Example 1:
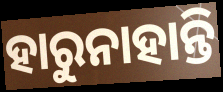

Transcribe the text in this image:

ହାରୁନାହାନ୍ତି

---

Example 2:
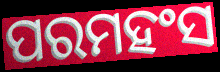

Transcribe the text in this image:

ପରମହଂସ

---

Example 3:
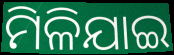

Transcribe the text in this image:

ମିଳିଯାଇ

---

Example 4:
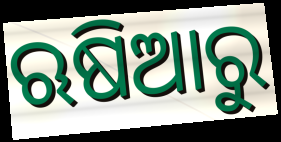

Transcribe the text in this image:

ଋଷିଆରୁ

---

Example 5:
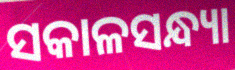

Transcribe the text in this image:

ସକାଳସନ୍ଧ୍ୟା